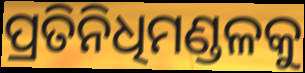
ପ୍ରତିନିଧିମଣ୍ଡଳକୁ